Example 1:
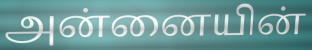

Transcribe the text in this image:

அன்னையின்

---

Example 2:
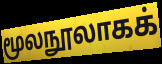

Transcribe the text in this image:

மூலநூலாகக்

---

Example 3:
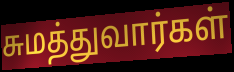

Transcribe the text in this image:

சுமத்துவார்கள்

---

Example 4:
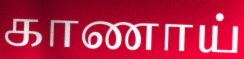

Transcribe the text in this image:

காணாய்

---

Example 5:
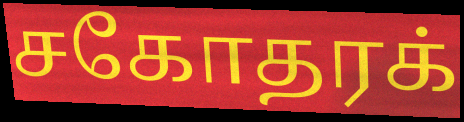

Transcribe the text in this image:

சகோதரக்